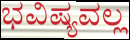
ಭವಿಷ್ಯವಲ್ಲ